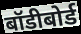
बॉडीबोर्ड